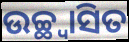
ଉଚ୍ଛ୍ୱାସିତ